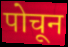
पोचून